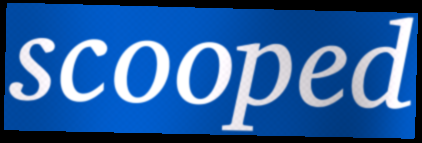
scooped